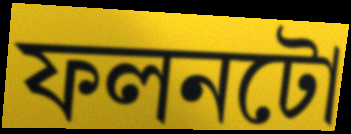
ফলনটো